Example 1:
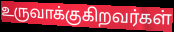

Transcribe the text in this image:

உருவாக்குகிறவர்கள்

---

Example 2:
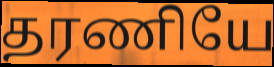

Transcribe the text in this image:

தரணியே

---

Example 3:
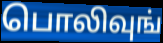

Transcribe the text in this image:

பொலிவுங்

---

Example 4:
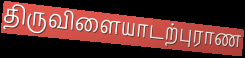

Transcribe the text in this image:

திருவிளையாடற்புராண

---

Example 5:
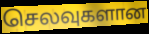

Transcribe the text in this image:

செலவுகளான